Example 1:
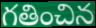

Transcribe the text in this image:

గతించిన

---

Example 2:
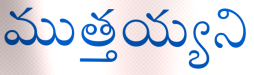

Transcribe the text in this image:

ముత్తయ్యని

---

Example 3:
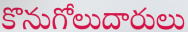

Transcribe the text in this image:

కొనుగోలుదారులు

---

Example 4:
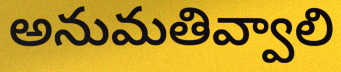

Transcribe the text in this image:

అనుమతివ్వాలి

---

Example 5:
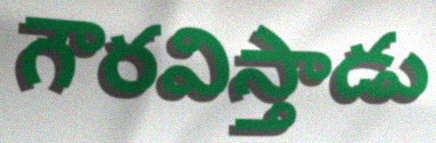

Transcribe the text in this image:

గౌరవిస్తాడు